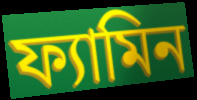
ফ্যামিন